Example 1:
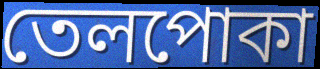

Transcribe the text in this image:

তেলপোকা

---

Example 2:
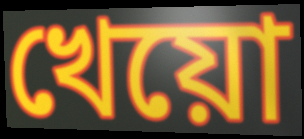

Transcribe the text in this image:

খেয়ো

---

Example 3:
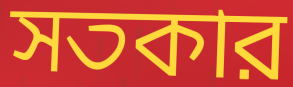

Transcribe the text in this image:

সতকার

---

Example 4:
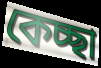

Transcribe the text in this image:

কেচ্ছা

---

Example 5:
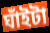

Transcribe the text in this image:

ঘাঁইটা